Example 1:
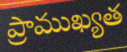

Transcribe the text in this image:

ప్రాముఖ్యత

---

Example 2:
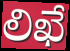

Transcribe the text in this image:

లిఖే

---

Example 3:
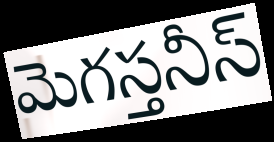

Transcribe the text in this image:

మెగస్తనీస్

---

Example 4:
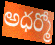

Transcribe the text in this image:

అధర్మో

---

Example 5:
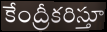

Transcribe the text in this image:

కేంద్రీకరిస్తూ